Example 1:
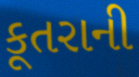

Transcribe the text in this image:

કૂતરાની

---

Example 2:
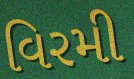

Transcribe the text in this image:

વિરમી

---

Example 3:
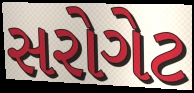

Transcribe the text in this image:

સરોગેટ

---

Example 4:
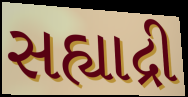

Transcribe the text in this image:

સહ્યાદ્રી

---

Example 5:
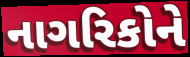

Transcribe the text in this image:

નાગરિકોને